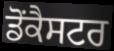
ਡੋਂਕੈਸਟਰ